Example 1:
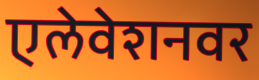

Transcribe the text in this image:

एलेवेशनवर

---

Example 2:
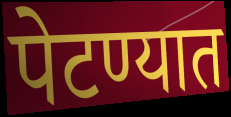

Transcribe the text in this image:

पेटण्यात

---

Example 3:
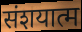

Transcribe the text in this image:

संशयात्म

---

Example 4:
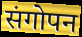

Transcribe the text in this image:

संगोपन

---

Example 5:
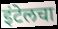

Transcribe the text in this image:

इंटेलचा